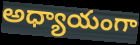
అధ్యాయంగా